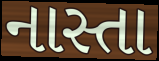
નાસ્તા